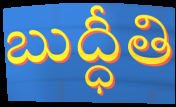
బుద్ధీతి